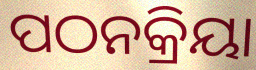
ପଠନକ୍ରିୟା